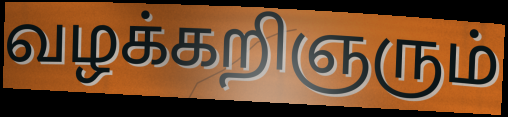
வழக்கறிஞரும்